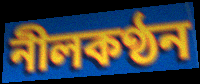
নীলকণ্ঠন